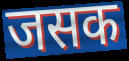
जसक